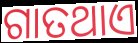
ଗାତଥାଏ